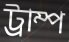
ট্রাম্প